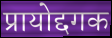
प्रायोद्दगक